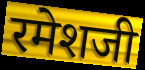
रमेशजी